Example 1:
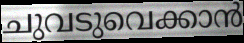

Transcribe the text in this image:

ചുവടുവെക്കാൻ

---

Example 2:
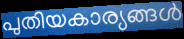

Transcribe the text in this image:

പുതിയകാര്യങ്ങൾ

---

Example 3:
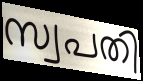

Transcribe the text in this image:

സ്വപതി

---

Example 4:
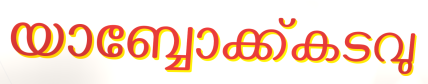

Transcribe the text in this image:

യാബ്ബോക്ക്കടവു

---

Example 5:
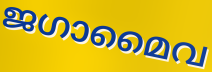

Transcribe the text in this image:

ജഗാമൈവ